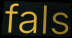
fals